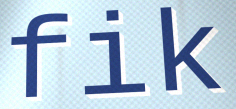
fik